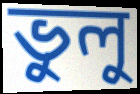
ভুলু